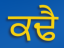
ਕਢੈ